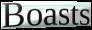
Boasts